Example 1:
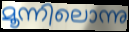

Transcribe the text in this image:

മൂന്നിലൊന്നു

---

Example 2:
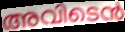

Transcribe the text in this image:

അവിടെൻ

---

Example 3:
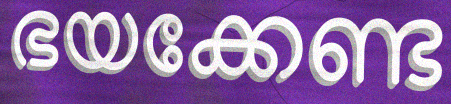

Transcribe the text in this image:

ഭയക്കേണ്ട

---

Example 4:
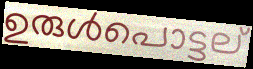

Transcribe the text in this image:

ഉരുൾപൊട്ടല്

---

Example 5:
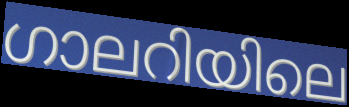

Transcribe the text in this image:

ഗാലറിയിലെ